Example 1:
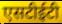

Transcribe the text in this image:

एसटीईटी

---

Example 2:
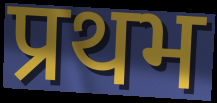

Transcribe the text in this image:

प्रथभ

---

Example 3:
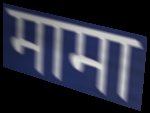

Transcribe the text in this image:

मामा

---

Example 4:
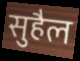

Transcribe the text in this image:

सुहैल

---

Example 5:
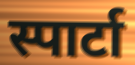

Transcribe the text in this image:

स्पार्टा